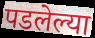
पडलेल्या